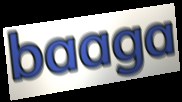
baaga